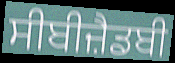
ਸੀਬੀਜ਼ੈਡਬੀ